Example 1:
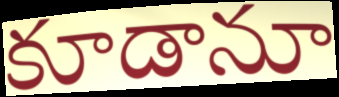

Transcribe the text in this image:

కూడానూ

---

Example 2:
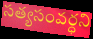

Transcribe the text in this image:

సత్యసంవర్ధని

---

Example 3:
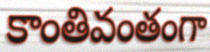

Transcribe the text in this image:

కాంతివంతంగా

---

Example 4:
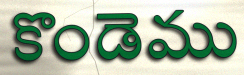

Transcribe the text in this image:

కొండెము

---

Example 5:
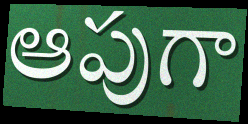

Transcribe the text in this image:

ఆపుగా